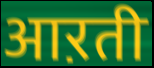
आऱती